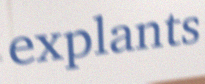
explants